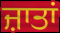
ਜ਼ਾਤਾਂ